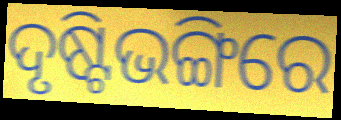
ଦୃଷ୍ଟିଭଙ୍ଗିରେ